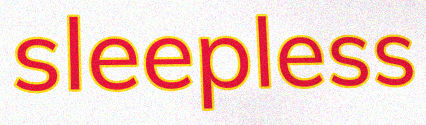
sleepless